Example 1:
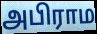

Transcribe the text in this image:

அபிராம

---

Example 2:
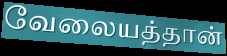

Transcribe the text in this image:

வேலையத்தான்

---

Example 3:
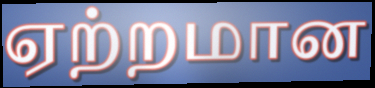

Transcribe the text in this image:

ஏற்றமான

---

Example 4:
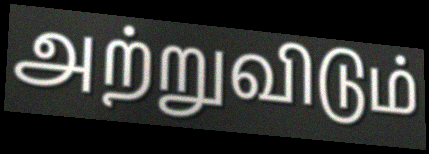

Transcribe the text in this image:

அற்றுவிடும்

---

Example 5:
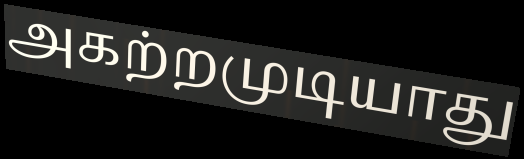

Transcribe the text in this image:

அகற்றமுடியாது